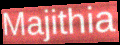
Majithia